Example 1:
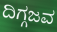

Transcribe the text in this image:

ದಿಗ್ಗಜವ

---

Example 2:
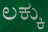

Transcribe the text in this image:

ಲಕ್ಕು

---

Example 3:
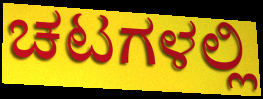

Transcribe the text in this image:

ಚಟಗಳಲ್ಲಿ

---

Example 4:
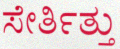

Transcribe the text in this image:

ಸೇರ್ತಿತ್ತು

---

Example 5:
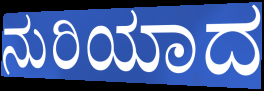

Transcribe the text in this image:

ನುರಿಯಾದ